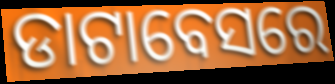
ଡାଟାବେସରେ